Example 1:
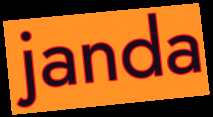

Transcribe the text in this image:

janda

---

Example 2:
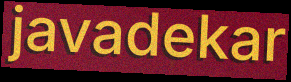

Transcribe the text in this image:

javadekar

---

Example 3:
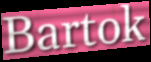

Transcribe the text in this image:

Bartok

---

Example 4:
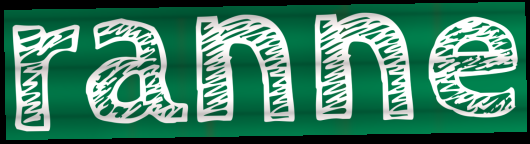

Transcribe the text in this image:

ranne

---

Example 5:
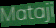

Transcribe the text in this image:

Mataji